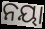
ନୟା